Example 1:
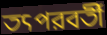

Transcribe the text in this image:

তৎপরবর্তী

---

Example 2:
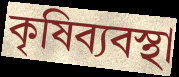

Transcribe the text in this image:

কৃষিব্যবস্থা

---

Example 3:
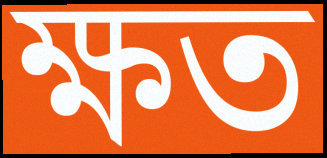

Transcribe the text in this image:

ক্ষত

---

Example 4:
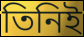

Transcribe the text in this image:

তিনিই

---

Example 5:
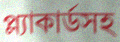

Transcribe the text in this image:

প্ল্যাকার্ডসহ